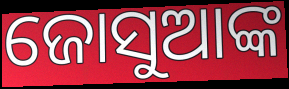
ଜୋସୁଆଙ୍କ